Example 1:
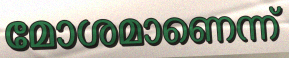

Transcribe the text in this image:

മോശമാണെന്ന്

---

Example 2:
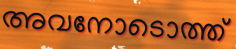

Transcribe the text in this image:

അവനോടൊത്ത്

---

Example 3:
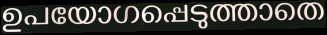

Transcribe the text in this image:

ഉപയോഗപ്പെടുത്താതെ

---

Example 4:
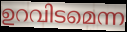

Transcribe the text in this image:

ഉറവിടമെന്ന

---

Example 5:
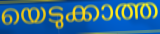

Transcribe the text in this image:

യെടുക്കാത്ത